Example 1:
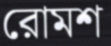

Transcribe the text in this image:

রোমশ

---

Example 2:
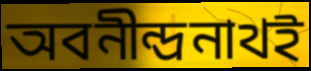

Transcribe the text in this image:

অবনীন্দ্রনাথই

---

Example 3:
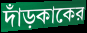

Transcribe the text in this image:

দাঁড়কাকের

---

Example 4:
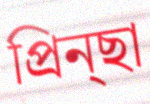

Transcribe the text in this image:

প্রিন্ছা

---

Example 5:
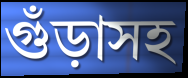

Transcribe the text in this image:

গুঁড়াসহ